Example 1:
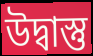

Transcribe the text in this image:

উদ্বাস্তু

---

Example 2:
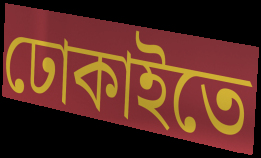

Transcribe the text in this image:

ঢোকাইতে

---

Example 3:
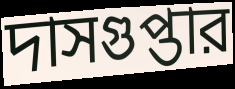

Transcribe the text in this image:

দাসগুপ্তার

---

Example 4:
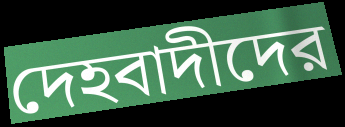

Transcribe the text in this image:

দেহবাদীদের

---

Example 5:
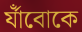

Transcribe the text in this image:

র্যাঁবোকে